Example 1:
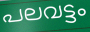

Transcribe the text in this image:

പലവട്ടം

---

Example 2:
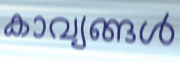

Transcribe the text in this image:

കാവ്യങ്ങൾ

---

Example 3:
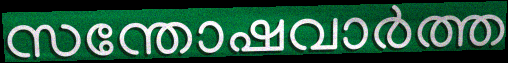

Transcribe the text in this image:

സന്തോഷവാർത്ത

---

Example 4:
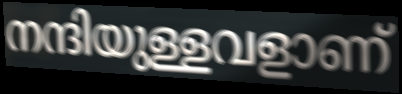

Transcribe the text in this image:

നന്ദിയുള്ളവളാണ്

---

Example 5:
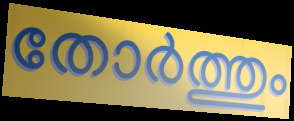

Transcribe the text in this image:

തോർത്തും